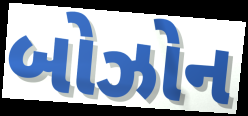
બોઝોન